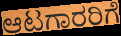
ಆಟಗಾರರಿಗೆ